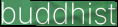
buddhist